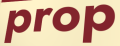
prop